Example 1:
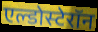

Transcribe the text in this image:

एल्डोस्टेरॉन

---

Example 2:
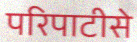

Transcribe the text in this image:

परिपाटीसे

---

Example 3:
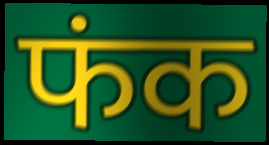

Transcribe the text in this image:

फंक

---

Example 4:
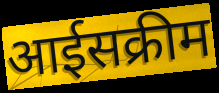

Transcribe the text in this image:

आईसक्रीम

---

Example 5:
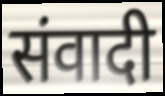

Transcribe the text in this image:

संवादी